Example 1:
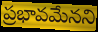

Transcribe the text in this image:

ప్రభావమేనని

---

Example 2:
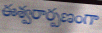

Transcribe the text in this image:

ఈశ్వరార్పణంగా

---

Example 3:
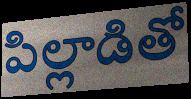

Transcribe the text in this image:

పిల్లాడితో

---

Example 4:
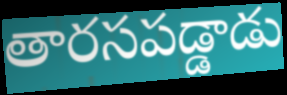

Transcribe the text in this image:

తారసపడ్డాడు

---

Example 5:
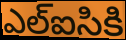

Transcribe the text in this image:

ఎల్ఐసికి